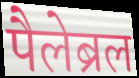
पैलेब्रल